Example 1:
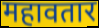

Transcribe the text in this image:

महावतार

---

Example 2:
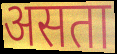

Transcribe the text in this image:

असता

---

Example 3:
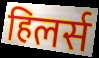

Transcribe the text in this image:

हिलर्स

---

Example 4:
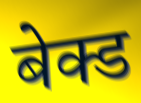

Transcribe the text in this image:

बेक्ड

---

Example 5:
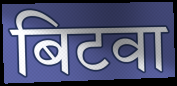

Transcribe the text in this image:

बिटवा